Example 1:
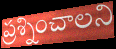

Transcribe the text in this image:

ప్రశ్నించాలని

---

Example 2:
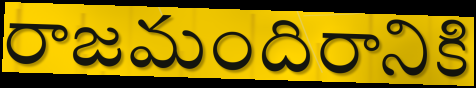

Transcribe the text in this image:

రాజమందిరానికి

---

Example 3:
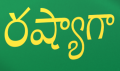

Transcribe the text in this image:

రష్యాగా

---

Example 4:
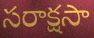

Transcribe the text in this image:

సరాక్షసా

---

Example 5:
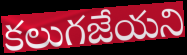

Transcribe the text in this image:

కలుగజేయని